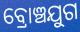
ବ୍ରୋଞ୍ଚଯୁଗ